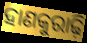
ହାଣକୁରାଢ଼ି